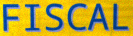
FISCAL